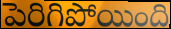
పెరిగిపోయింది